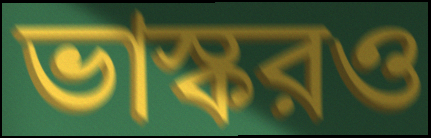
ভাস্করও